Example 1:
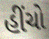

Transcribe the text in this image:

હીંચો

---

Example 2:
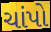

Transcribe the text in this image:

ચાંપો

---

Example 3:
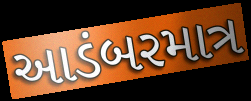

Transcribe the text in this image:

આડંબરમાત્ર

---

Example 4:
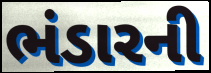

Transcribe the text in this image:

ભંડારની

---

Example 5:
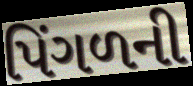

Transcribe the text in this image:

પિંગળની